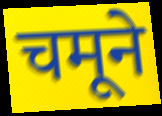
चमूने